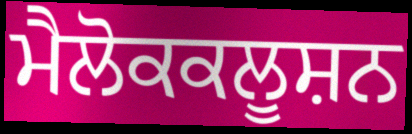
ਮੈਲੋਕਕਲੂਸ਼ਨ